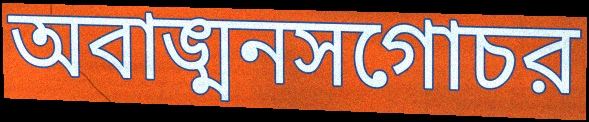
অবাঙ্মনসগোচর